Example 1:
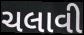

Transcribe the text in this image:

ચલાવી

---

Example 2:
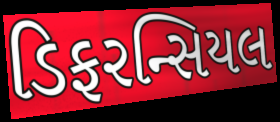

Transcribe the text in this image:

ડિફરન્સિયલ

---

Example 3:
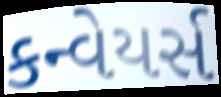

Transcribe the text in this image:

કન્વેયર્સ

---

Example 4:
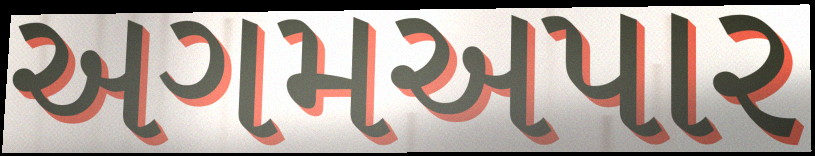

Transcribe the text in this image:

અગમઅપાર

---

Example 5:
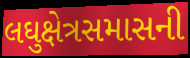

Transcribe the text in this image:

લઘુક્ષેત્રસમાસની